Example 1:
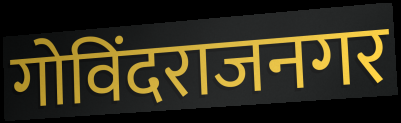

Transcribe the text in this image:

गोविंदराजनगर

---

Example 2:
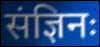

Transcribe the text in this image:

संज्ञिनः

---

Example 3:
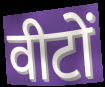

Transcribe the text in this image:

वीटों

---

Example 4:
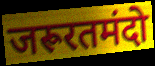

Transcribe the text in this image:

जरूरतमंदो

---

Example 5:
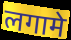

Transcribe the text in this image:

लगामे